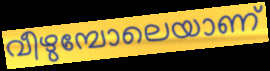
വീഴുമ്പോലെയാണ്